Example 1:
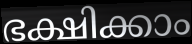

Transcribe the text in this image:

ഭക്ഷിക്കാം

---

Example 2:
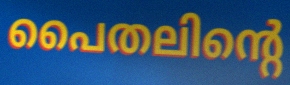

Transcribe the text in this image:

പൈതലിന്റെ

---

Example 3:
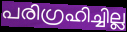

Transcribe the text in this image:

പരിഗ്രഹിച്ചില്ല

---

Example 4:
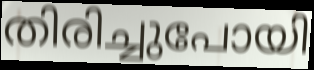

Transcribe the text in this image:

തിരിച്ചുപോയി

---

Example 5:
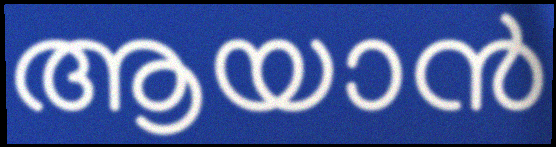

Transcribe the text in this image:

ആയാൻ